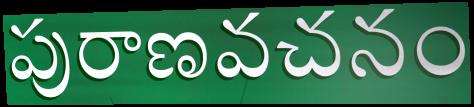
పురాణవచనం